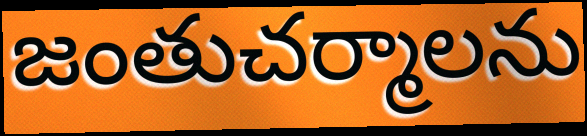
జంతుచర్మాలను